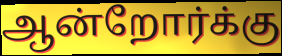
ஆன்றோர்க்கு